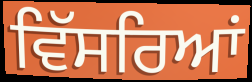
ਵਿੱਸਰਿਆਂ